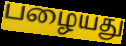
பழையது